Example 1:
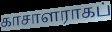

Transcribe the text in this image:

காசாளராகப்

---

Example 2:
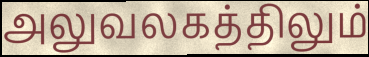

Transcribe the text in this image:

அலுவலகத்திலும்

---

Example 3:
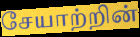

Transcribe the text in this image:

சேயாற்றின்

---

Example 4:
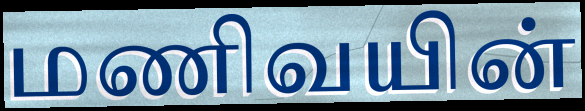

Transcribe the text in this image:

மணிவயின்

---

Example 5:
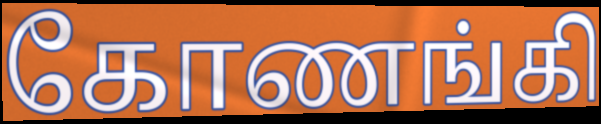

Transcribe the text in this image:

கோணங்கி